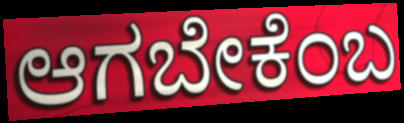
ಆಗಬೇಕೆಂಬ